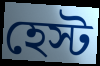
হেস্ট